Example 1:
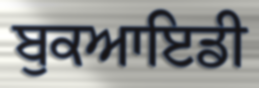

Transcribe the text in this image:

ਬੁਕਆਇਡੀ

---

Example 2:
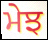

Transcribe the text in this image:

ਮੇਝ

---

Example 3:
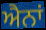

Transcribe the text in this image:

ਐਨਾਂ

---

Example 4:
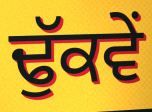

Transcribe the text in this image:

ਢੁੱਕਵੇਂ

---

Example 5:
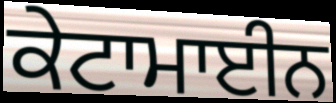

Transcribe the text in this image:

ਕੇਟਾਮਾਈਨ